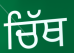
ਚਿੱਥ